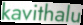
kavithalu